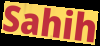
Sahih